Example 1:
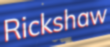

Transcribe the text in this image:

Rickshaw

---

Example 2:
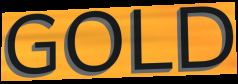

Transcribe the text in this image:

GOLD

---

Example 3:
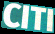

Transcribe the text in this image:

CITI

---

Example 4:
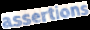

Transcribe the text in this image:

assertions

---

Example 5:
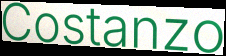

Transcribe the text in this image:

Costanzo